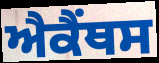
ਐਕੈਂਥਸ